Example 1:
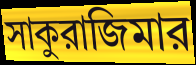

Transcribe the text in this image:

সাকুরাজিমার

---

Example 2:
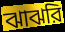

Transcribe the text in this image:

ঝাঝরি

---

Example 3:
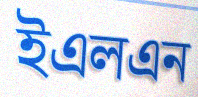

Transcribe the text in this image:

ইএলএন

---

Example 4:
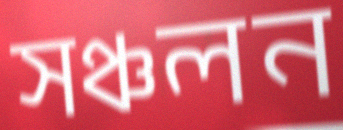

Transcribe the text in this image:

সঞ্চলন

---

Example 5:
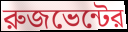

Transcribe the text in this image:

রুজভেন্টের